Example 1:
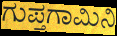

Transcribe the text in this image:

ಗುಪ್ತಗಾಮಿನಿ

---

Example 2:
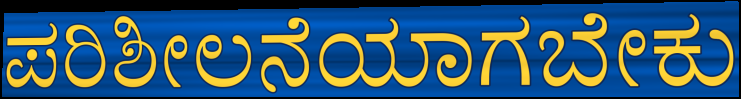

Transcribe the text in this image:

ಪರಿಶೀಲನೆಯಾಗಬೇಕು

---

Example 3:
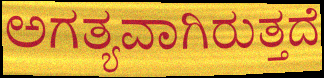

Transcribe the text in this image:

ಅಗತ್ಯವಾಗಿರುತ್ತದೆ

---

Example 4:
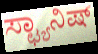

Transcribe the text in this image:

ಸ್ಟ್ಯಾನಿಷ್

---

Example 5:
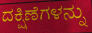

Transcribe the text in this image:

ದಕ್ಷಿಣೆಗಳನ್ನು